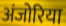
अंजोरिया